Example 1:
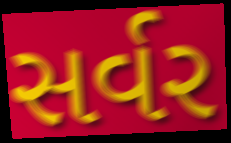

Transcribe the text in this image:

સર્વર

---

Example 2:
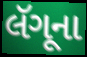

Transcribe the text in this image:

લૅગૂના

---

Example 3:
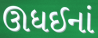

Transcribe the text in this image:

ઊધઈનાં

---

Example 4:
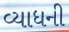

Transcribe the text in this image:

વ્યાધની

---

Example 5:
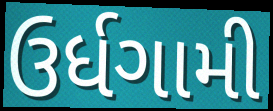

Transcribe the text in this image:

ઉર્ધગામી